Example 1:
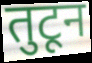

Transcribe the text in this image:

तुटून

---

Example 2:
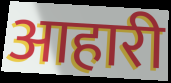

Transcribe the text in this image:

आहारी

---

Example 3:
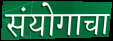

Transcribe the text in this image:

संयोगाचा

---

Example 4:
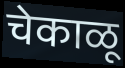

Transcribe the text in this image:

चेकाळू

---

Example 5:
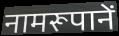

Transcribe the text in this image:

नामरूपानें